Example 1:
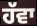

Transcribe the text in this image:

ਹੱਵਾ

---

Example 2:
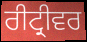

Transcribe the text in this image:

ਰੀਟ੍ਰੀਵਰ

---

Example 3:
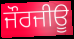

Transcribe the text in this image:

ਜੌਰਜੀਊ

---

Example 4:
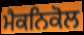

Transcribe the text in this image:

ਮੈਕਨਿਕੋਲ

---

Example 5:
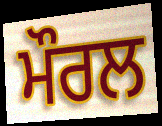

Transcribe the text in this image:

ਮੌਰਲ